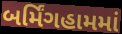
બર્મિંગહામમાં